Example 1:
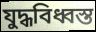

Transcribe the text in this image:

যুদ্ধবিধ্বস্ত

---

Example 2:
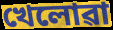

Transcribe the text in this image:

খেলোৱা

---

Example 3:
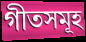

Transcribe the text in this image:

গীতসমূহ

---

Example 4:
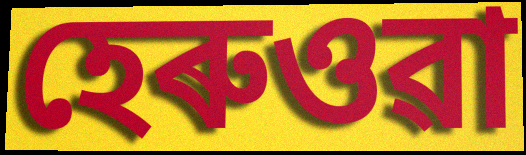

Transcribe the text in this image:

হেৰুওৱা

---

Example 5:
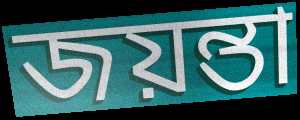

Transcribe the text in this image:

জয়ন্তা